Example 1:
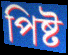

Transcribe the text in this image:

পিষ্ট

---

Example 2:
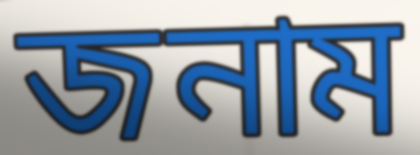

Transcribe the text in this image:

জনাম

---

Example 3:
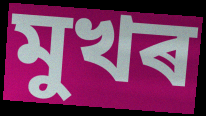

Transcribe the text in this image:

মুখৰ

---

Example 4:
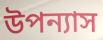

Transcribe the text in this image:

উপন্যাস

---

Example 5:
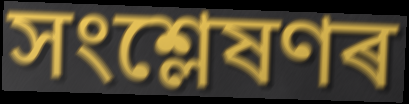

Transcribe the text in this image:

সংশ্লেষণৰ